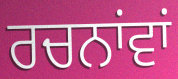
ਰਚਨਾਂਵਾਂ